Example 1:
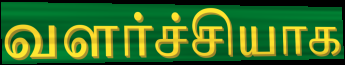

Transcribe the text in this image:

வளர்ச்சியாக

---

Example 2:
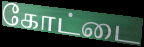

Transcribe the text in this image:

கோட்டை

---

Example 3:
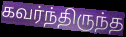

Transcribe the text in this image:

கவர்ந்திருந்த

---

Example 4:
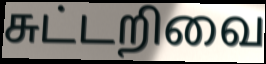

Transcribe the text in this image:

சுட்டறிவை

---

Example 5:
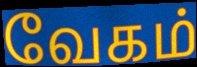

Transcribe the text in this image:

வேகம்